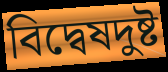
বিদ্বেষদুষ্ট